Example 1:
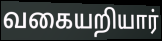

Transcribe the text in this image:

வகையறியார்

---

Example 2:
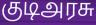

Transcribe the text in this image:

குடிஅரசு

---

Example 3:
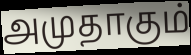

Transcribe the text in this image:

அமுதாகும்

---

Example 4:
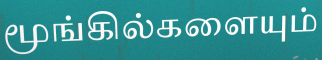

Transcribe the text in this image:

மூங்கில்களையும்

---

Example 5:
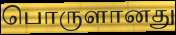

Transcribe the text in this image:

பொருளானது